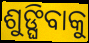
ଶୁଙ୍ଘିବାକୁ